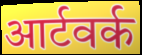
आर्टवर्क